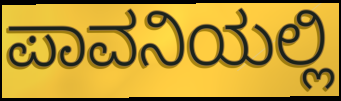
ಪಾವನಿಯಲ್ಲಿ